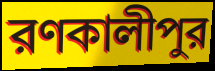
রণকালীপুর